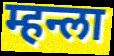
म्हन्ला